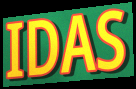
IDAS